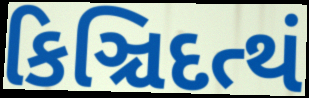
કિઞ્ચિદત્થં